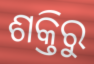
ଶକ୍ତିରୁ